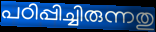
പഠിപ്പിച്ചിരുന്നതു